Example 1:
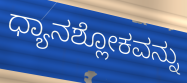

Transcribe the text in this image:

ಧ್ಯಾನಶ್ಲೋಕವನ್ನು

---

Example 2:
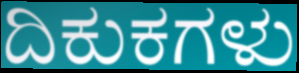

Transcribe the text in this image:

ದಿಕುಕಗಳು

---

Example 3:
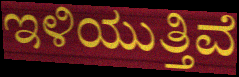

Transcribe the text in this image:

ಇಳಿಯುತ್ತಿವೆ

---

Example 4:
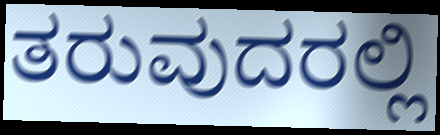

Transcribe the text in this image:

ತರುವುದರಲ್ಲಿ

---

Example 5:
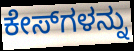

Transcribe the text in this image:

ಕೇಸ್‌ಗಳನ್ನು